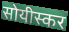
सोयीस्कर